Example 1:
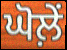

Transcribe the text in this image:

ਘੋਲ਼ੇਂ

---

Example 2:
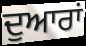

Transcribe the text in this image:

ਦੁਆਰਾਂ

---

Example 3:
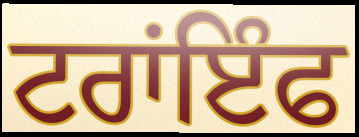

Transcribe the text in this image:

ਟਰਾਂਇੰਫ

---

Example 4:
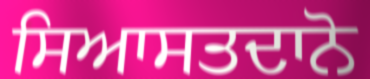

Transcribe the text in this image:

ਸਿਆਸਤਦਾਨੋ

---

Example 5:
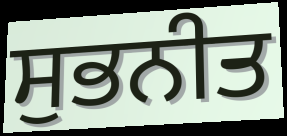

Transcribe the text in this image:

ਸੁਭਨੀਤ